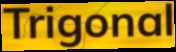
Trigonal